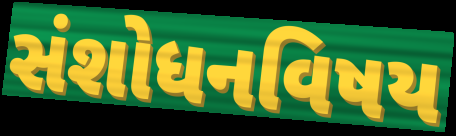
સંશોધનવિષય